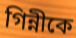
গিন্নীকে